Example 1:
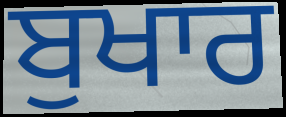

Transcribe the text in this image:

ਬੁਖਾਰ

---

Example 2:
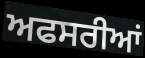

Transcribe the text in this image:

ਅਫਸਰੀਆਂ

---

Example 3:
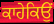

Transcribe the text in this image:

ਕਾਹੇਕਿਉਂ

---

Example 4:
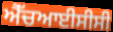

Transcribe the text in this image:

ਐੱਚਆਈਸੀਸੀ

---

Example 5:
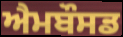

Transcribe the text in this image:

ਐਮਬੌਸਡ